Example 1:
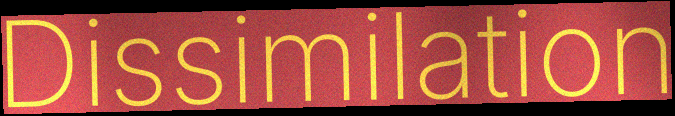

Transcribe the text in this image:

Dissimilation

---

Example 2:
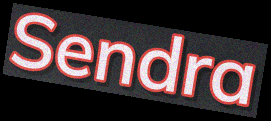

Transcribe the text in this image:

Sendra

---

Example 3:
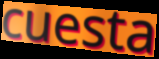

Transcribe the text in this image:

cuesta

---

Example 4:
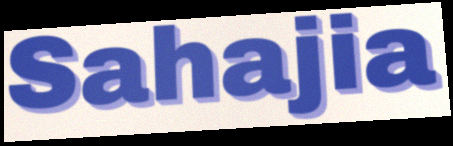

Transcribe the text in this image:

Sahajia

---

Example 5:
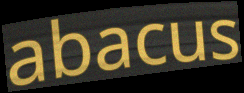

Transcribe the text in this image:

abacus